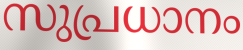
സുപ്രധാനം